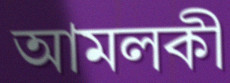
আমলকী